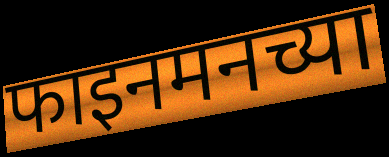
फाइनमनच्या